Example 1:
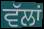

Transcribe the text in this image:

ਵੱਲਾਂ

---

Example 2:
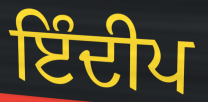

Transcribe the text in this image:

ਇੰਦੀਪ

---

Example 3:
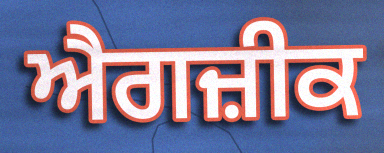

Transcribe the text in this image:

ਐਗਜ਼ੀਕ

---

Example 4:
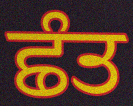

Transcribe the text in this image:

ਛੰਤ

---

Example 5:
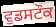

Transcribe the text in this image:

ਵੁਡਸਟੌਕ